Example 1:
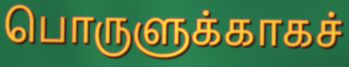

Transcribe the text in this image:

பொருளுக்காகச்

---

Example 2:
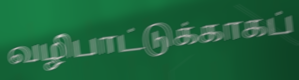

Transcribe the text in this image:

வழிபாட்டுக்காகப்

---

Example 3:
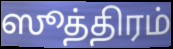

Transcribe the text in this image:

ஸூத்திரம்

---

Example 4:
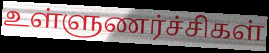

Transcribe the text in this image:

உள்ளுணர்ச்சிகள்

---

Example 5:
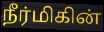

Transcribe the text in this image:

நீர்மிகின்